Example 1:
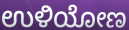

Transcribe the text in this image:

ಉಳಿಯೋಣ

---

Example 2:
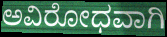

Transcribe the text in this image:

ಅವಿರೋಧವಾಗಿ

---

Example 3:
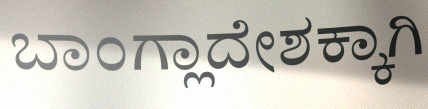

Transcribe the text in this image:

ಬಾಂಗ್ಲಾದೇಶಕ್ಕಾಗಿ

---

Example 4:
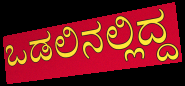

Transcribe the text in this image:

ಒಡಲಿನಲ್ಲಿದ್ದ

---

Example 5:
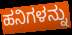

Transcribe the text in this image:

ಹನಿಗಳನ್ನು